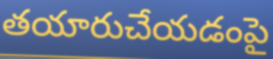
తయారుచేయడంపై